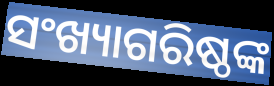
ସଂଖ୍ୟାଗରିଷ୍ଠଙ୍କ